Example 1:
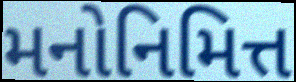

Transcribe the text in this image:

મનોનિમિત્ત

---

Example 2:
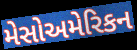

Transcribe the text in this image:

મેસોઅમેરિકન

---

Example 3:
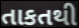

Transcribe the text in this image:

તાકતથી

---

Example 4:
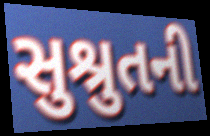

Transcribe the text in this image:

સુશ્રુતની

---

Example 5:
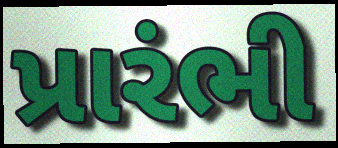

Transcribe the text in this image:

પ્રારંભી